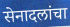
सेनादलांचा